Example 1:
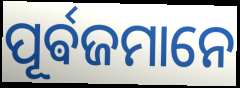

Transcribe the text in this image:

ପୂର୍ଵଜମାନେ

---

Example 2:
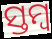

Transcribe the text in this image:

ସ୍ତମ୍ବ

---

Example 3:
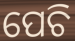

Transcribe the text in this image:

ପେଚି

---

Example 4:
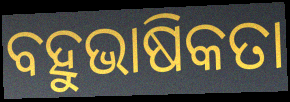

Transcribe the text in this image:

ବହୁଭାଷିକତା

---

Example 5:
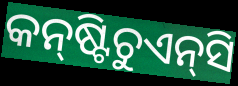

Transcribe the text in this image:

କନ୍‍ଷ୍ଟିଚୁଏନ୍‍ସି